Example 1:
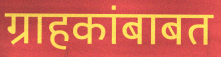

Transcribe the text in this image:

ग्राहकांबाबत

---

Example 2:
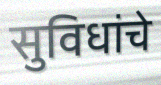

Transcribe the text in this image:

सुविधांचे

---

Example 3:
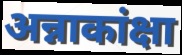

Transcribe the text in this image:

अन्नाकांक्षा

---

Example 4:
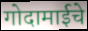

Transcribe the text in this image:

गोदामाईचे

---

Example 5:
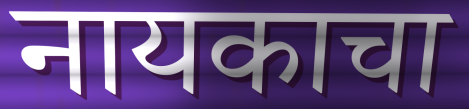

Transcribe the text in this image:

नायकाचा